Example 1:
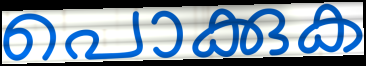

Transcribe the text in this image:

പൊക്കുക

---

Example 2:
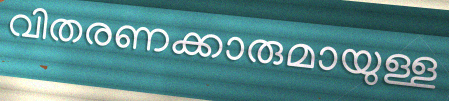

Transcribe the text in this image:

വിതരണക്കാരുമായുള്ള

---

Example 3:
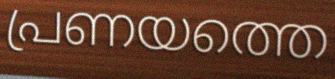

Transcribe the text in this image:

പ്രണയത്തെ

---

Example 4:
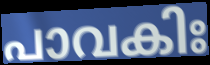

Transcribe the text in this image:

പാവകിഃ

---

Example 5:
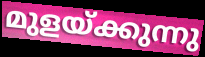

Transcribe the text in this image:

മുളയ്ക്കുന്നു